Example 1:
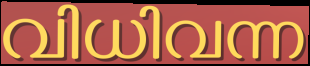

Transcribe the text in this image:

വിധിവന്ന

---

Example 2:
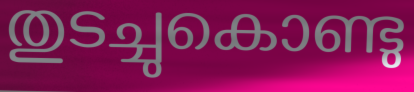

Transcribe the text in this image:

തുടച്ചുകൊണ്ടു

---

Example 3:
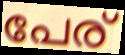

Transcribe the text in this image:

പേര്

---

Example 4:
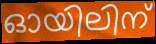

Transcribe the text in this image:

ഓയിലിന്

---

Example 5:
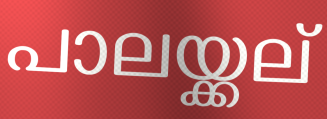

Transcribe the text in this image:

പാലയ്ക്കല്